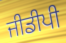
ਜੀਡੀਪੀ